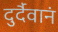
दुर्दैवानं